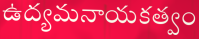
ఉద్యమనాయకత్వం